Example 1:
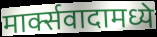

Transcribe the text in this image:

मार्क्सवादामध्ये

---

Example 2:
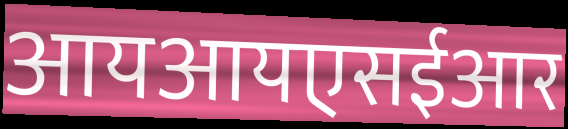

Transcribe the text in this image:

आयआयएसईआर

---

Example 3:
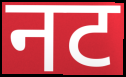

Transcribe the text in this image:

नट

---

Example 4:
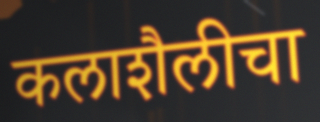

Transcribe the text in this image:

कलाशैलीचा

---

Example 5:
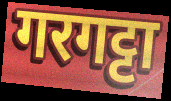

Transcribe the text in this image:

गरगट्टा